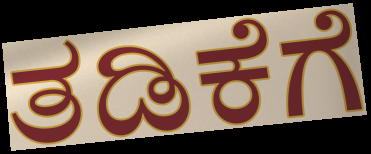
ತಡಿಕೆಗೆ